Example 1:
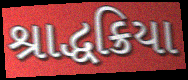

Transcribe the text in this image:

શ્રાદ્ધક્રિયા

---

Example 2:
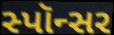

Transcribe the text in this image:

સ્પૉન્સર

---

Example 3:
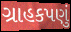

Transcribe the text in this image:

ગ્રાહકપણું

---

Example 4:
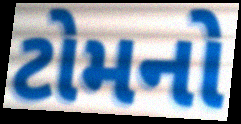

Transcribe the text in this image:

ટોમનો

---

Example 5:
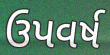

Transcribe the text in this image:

ઉપવર્ષ